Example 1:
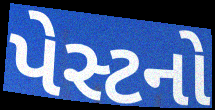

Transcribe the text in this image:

પેસ્ટનો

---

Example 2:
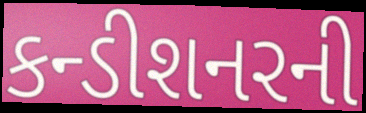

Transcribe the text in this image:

કન્ડીશનરની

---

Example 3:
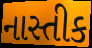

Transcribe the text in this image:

નાસ્તીક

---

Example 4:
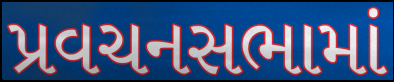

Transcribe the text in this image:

પ્રવચનસભામાં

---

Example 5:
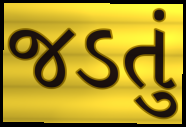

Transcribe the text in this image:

જડતું